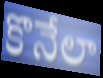
కొనేలా